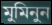
মুমিনুন